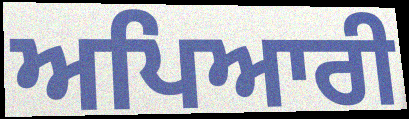
ਅਪਿਆਰੀ